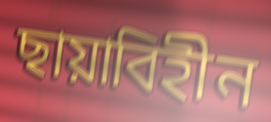
ছায়াবিহীন